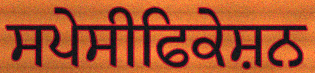
ਸਪੇਸੀਫਿਕੇਸ਼ਨ